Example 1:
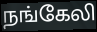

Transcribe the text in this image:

நங்கேலி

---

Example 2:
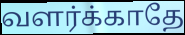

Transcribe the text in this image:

வளர்க்காதே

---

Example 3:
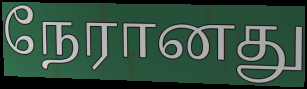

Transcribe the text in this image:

நேரானது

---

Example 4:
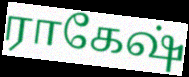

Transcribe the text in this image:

ராகேஷ்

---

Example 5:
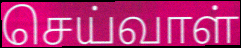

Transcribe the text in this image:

செய்வாள்